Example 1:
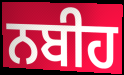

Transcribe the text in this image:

ਨਬੀਹ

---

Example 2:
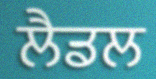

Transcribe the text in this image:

ਲੈਡਲ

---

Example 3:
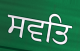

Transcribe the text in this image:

ਸਵਤਿ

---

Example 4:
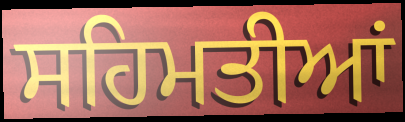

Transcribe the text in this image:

ਸਹਿਮਤੀਆਂ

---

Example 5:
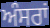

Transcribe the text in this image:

ਅੰਸਰਾਂ